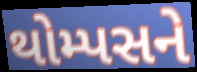
થોમ્પસને